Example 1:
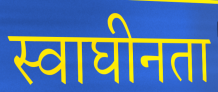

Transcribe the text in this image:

स्वाघीनता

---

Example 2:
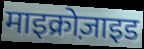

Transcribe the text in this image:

माइक्रोज़ाइड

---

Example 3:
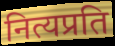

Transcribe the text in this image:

नित्यप्रति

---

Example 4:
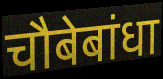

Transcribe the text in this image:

चौबेबांधा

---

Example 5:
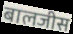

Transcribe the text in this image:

बालजीस